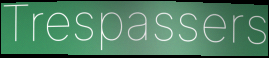
Trespassers